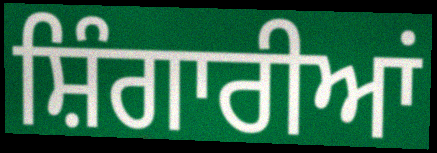
ਸ਼ਿੰਗਾਰੀਆਂ